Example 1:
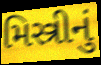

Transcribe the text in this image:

મિસ્ત્રીનું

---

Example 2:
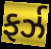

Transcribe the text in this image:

ફર્ઝ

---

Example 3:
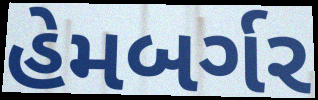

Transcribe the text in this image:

હેમબર્ગર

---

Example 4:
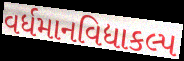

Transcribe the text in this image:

વર્ધમાનવિદ્યાકલ્પ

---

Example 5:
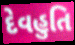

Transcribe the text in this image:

દેવહુતિ